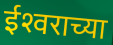
ईश्वराच्या